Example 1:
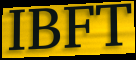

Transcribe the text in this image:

IBFT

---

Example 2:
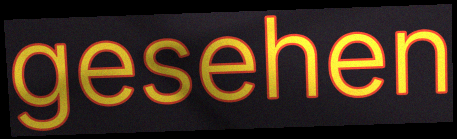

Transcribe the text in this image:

gesehen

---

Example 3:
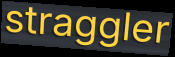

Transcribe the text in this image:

straggler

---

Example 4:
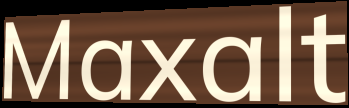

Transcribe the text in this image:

Maxalt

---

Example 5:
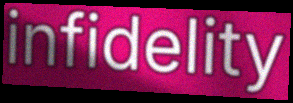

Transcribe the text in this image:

infidelity